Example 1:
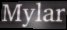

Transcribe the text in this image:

Mylar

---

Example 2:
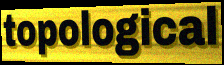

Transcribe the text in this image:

topological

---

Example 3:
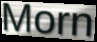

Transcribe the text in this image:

Morn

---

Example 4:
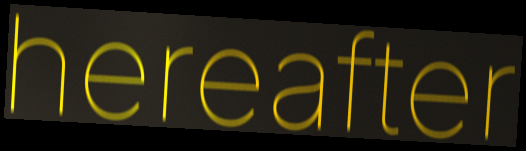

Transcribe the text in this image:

hereafter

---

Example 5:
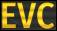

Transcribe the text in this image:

EVC